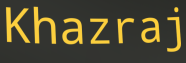
Khazraj